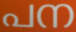
പന